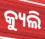
କ୍ୟୁଲି